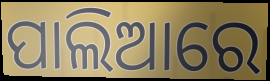
ପାଲିଆରେ